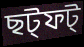
ছট্‌ফট্